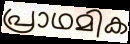
പ്രാഥമിക